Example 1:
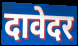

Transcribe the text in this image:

दावेदर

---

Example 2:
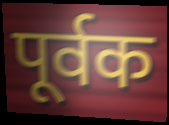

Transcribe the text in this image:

पूर्वक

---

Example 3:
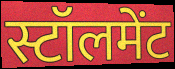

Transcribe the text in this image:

स्टॉलमेंट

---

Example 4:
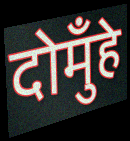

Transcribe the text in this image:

दोमुँहे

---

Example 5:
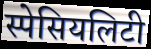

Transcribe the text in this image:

स्पेसियलिटी